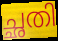
ച്ഛതി